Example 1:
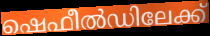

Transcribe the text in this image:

ഷെഫീൽഡിലേക്ക്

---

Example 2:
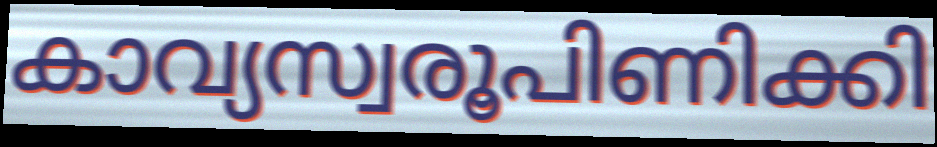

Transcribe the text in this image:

കാവ്യസ്വരൂപിണിക്കി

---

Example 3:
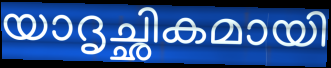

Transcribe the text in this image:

യാദൃച്ഛികമായി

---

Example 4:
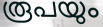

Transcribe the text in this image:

രൂപയും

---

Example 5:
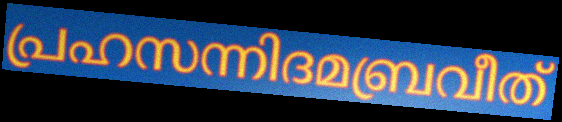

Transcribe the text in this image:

പ്രഹസന്നിദമബ്രവീത്